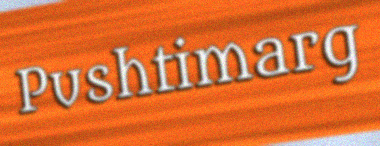
Pushtimarg